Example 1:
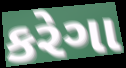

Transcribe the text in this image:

કરેગા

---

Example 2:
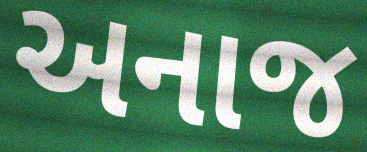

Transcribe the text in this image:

અનાજ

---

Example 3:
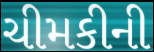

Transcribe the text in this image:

ચીમકીની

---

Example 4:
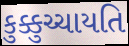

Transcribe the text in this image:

કુક્કુચ્ચાયતિ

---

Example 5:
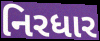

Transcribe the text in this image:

નિરધાર